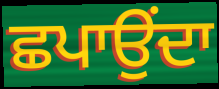
ਛਪਾਉਂਦਾ